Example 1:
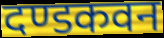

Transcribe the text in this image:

दण्डकवन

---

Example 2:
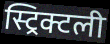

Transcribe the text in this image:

स्ट्रिक्टली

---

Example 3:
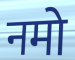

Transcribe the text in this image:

नमो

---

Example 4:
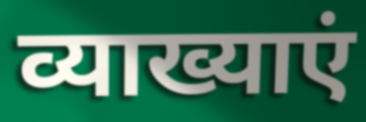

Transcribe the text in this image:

व्याख्याएं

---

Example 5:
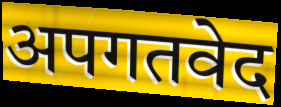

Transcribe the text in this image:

अपगतवेद